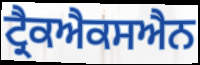
ਟ੍ਰੈਕਐਕਸਐਨ